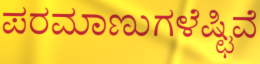
ಪರಮಾಣುಗಳೆಷ್ಟಿವೆ